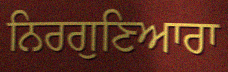
ਨਿਰਗੁਣਿਆਰਾ